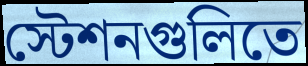
স্টেশনগুলিতে